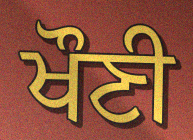
ਖੌਣੀ